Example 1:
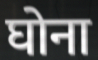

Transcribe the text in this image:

घोना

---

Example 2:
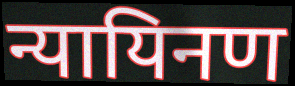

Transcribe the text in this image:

न्यायिनण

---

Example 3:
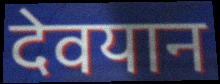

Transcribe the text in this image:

देवयान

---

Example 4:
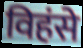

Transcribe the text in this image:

विहंसे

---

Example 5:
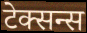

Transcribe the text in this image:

टेक्सन्स